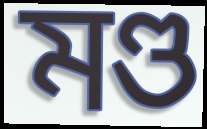
মণ্ড